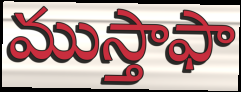
ముస్తాఫా